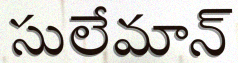
సులేమాన్